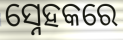
ସ୍ନେହକରେ